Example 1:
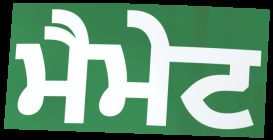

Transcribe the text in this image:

ਮੈਮੇਟ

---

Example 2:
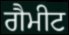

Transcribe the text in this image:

ਗੈਮੀਟ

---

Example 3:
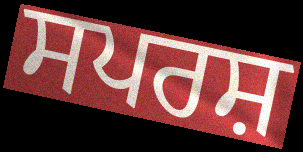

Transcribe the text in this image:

ਸਪਰਸ਼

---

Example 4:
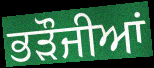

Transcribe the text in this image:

ਭੜੌਜੀਆਂ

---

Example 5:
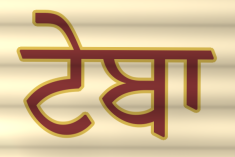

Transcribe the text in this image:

ਟੇਬਾ